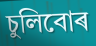
চুলিবোৰ